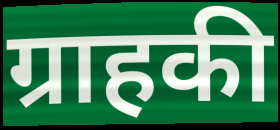
ग्राहकी